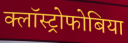
क्लॉस्ट्रोफोबिया